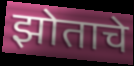
झोताचे